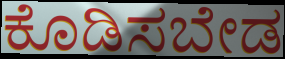
ಕೊಡಿಸಬೇಡ